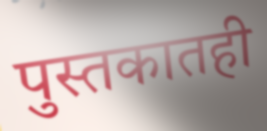
पुस्तकातही